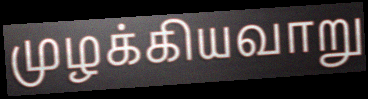
முழக்கியவாறு